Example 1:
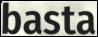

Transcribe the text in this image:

basta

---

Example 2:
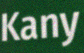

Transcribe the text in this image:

Kany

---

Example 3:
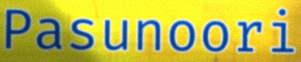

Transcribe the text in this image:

Pasunoori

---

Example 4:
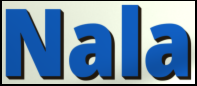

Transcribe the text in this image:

Nala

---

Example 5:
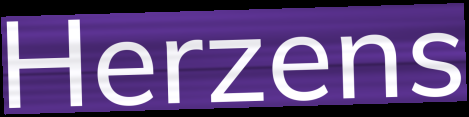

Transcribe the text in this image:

Herzens